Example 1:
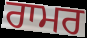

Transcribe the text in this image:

ਰਾਮਰ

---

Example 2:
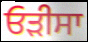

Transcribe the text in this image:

ਓੜੀਸਾ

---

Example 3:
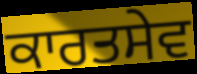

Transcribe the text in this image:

ਕਾਰਤਸੇਵ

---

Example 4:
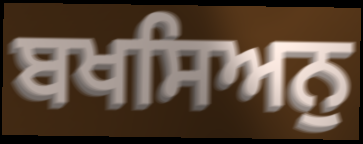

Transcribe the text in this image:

ਬਖਸਿਅਨੁ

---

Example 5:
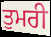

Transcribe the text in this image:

ਤੁਮਰੀ